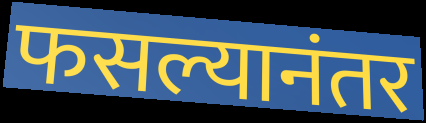
फसल्यानंतर